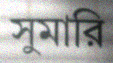
সুমারি